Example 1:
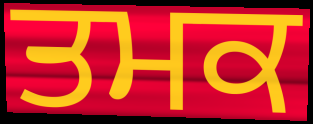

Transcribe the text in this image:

ਤਮਕ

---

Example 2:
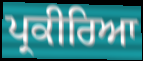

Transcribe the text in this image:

ਪ੍ਰਕੀਰਿਆ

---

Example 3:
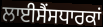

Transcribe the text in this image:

ਲਾਈਸੈਂਸਧਾਰਕਾਂ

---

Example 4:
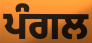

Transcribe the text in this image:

ਪੰਗਲ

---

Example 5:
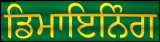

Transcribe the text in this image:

ਡਿਮਾਇਨਿੰਗ